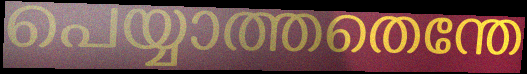
പെയ്യാത്തതെന്തേ